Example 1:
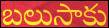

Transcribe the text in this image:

బలుసాకు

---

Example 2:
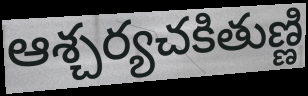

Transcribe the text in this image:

ఆశ్చర్యచకితుణ్ణి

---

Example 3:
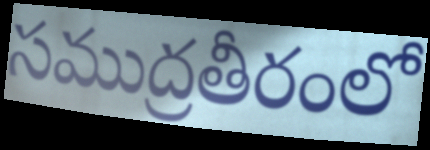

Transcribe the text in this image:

సముద్రతీరంలో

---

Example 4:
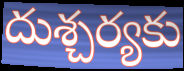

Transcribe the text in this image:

దుశ్చర్యకు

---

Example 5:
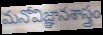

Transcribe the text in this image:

మనోవిజ్ఞానశాస్త్రం